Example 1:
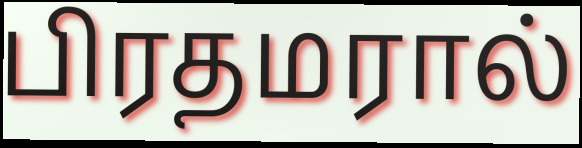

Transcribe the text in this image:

பிரதமரால்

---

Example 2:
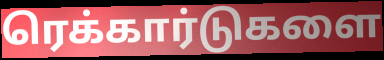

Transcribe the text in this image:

ரெக்கார்டுகளை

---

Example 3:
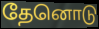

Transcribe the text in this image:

தேனொடு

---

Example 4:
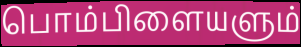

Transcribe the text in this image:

பொம்பிளையளும்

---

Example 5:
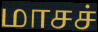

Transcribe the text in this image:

மாசச்